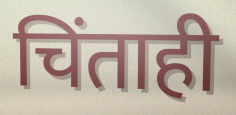
चिंताही